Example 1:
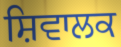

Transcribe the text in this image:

ਸ਼ਿਵਾਲਕ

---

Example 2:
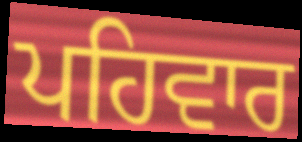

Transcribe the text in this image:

ਪਹਿਵਾਰ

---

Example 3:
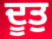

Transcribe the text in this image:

ਦੂਤੁ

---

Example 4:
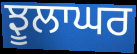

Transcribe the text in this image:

ਝੂਲਾਘਰ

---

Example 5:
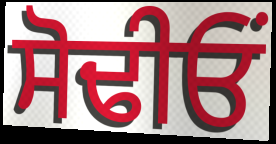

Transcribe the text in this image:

ਸੋਢੀਓਂ